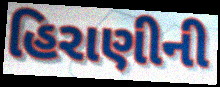
હિરાણીની